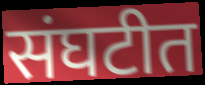
संघटीत